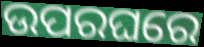
ଉପରଘରେ